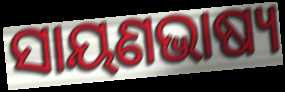
ସାୟଣଭାଷ୍ୟ